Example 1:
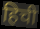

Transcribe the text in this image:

हिची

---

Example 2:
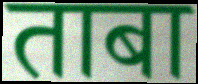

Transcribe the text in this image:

ताबा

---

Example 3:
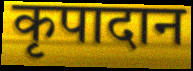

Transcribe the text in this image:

कृपादान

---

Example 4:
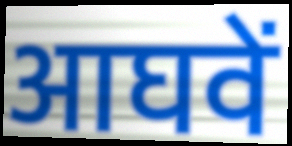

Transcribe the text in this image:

आघवें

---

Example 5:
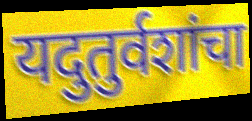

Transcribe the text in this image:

यदुतुर्वशांचा